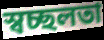
স্বচ্ছলতা